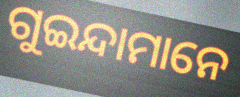
ଗୁଇନ୍ଦାମାନେ